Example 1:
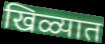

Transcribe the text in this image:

खिळ्यात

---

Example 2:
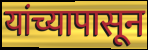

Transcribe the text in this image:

यांच्यापासून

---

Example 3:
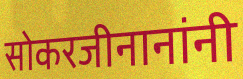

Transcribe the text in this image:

सोकरजीनानांनी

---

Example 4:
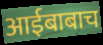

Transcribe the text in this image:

आईबाबाच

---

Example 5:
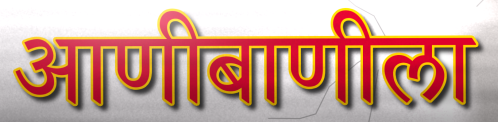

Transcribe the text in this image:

आणीबाणीला